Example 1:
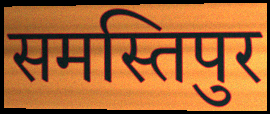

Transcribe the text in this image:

समस्तिपुर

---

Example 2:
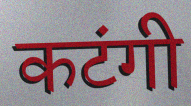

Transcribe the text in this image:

कटंगी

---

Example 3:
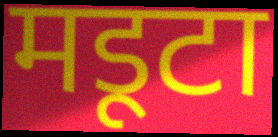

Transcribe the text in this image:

मडूटा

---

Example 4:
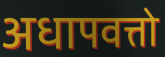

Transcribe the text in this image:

अधापवत्तो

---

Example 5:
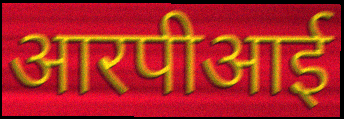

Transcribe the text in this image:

आरपीआई